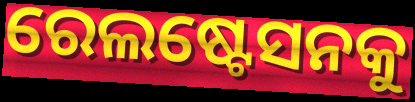
ରେଲଷ୍ଟେସନକୁ